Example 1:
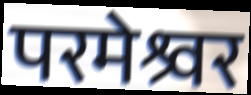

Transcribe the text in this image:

परमेश्र्वर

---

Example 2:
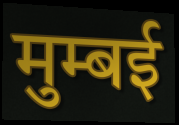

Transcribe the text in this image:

मुम्बई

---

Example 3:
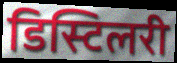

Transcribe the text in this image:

डिस्टिलरी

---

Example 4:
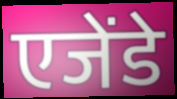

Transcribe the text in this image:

एजेंडे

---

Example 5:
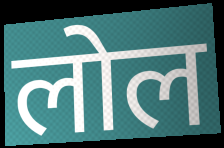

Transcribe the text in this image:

लोल